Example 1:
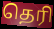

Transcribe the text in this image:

தெரி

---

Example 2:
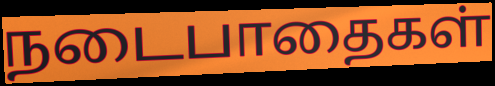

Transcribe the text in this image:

நடைபாதைகள்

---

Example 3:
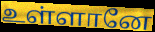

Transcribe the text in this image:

உள்ளானே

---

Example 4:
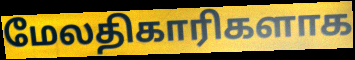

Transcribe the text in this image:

மேலதிகாரிகளாக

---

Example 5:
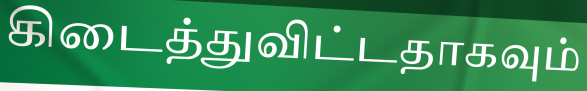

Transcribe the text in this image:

கிடைத்துவிட்டதாகவும்